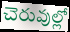
చెరువుల్లో